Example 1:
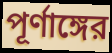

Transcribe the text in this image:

পূর্ণাঙ্গের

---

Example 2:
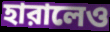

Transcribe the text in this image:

হারালেও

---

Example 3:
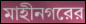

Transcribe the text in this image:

মাহীনগরের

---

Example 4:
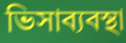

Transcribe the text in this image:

ভিসাব্যবস্থা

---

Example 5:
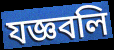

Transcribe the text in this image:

যজ্ঞবলি